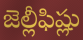
జెల్లీఫిష్లు